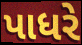
પાધરે